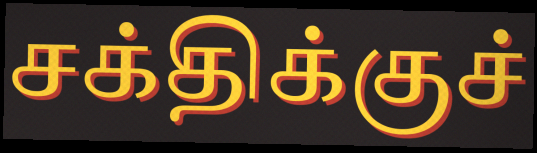
சக்திக்குச்